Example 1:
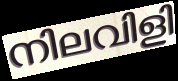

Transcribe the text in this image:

നിലവിളി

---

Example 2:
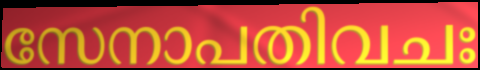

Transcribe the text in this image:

സേനാപതിവചഃ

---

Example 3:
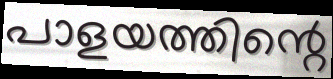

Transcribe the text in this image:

പാളയത്തിന്റെ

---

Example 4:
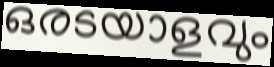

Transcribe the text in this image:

ഒരടയാളവും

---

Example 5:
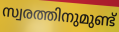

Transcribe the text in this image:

സ്വരത്തിനുമുണ്ട്